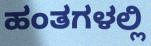
ಹಂತಗಳಲ್ಲಿ